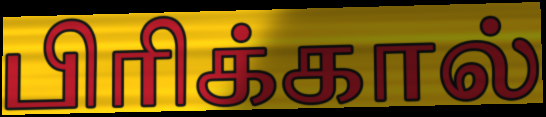
பிரிக்கால்